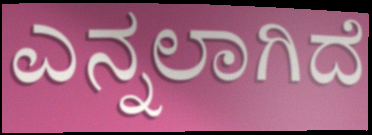
ಎನ್ನಲಾಗಿದೆ